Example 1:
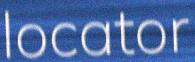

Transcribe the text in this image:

locator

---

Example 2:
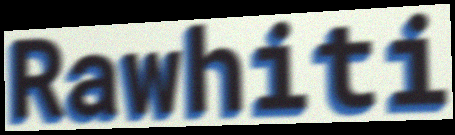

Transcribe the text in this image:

Rawhiti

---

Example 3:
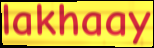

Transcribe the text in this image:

lakhaay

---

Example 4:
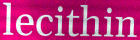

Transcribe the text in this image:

lecithin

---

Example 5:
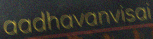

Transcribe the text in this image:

aadhavanvisai